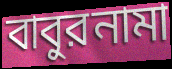
বাবুরনামা